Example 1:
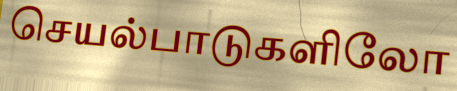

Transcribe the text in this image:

செயல்பாடுகளிலோ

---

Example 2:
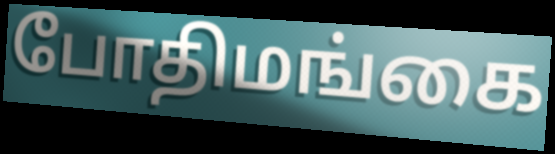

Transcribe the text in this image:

போதிமங்கை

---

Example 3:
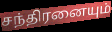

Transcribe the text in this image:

சந்திரனையும்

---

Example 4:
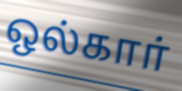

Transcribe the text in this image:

ஒல்கார்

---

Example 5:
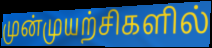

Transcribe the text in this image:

முன்முயற்சிகளில்